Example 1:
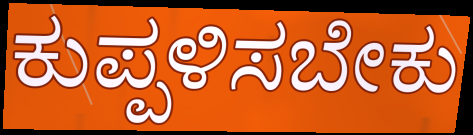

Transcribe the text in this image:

ಕುಪ್ಪಳಿಸಬೇಕು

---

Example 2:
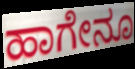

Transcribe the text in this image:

ಹಾಗೇನೂ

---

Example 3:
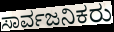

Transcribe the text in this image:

ಸಾರ್ವಜನಿಕರು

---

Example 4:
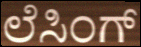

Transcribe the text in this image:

ಲೆಸಿಂಗ್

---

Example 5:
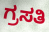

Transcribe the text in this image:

ಗ್ರಸತಿ